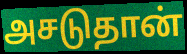
அசடுதான்